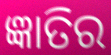
ଜ୍ଞାତିର